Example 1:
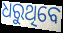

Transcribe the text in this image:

ଧରୁଥିବେ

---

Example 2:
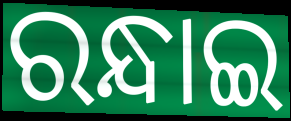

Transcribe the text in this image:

ରନ୍ଧାଇ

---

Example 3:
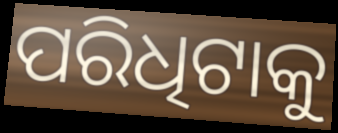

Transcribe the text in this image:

ପରିଧିଟାକୁ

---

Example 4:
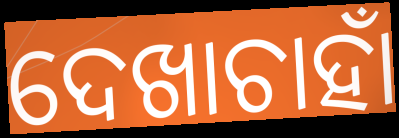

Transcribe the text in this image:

ଦେଖାଚାହାଁ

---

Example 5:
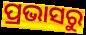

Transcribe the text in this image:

ପ୍ରଭାସରୁ